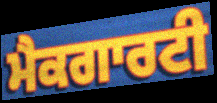
ਮੈਕਗਾਰਟੀ